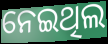
ନେଇଥିଲ